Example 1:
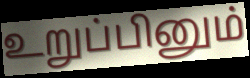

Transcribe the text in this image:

உறுப்பினும்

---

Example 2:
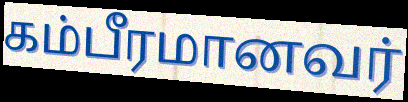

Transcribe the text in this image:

கம்பீரமானவர்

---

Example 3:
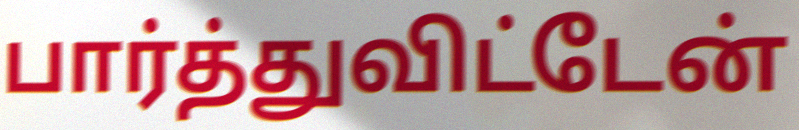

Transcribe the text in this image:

பார்த்துவிட்டேன்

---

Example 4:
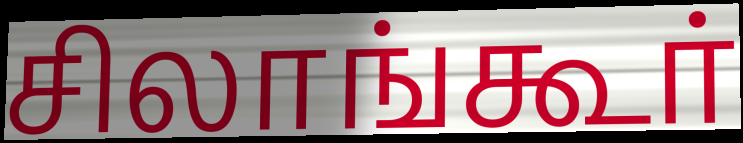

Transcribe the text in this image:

சிலாங்கூர்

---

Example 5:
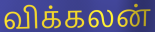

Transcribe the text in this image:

விக்கலன்